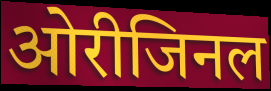
ओरीजिनल